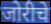
जोरीचे